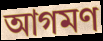
আগমণ